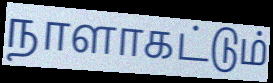
நாளாகட்டும்